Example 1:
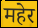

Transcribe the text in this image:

महेर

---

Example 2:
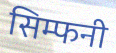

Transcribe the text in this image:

सिम्फनी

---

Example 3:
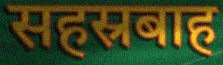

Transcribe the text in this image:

सहस्रबाह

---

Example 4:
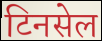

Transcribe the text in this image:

टिनसेल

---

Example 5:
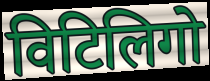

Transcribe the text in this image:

विटिलिगो